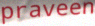
praveen